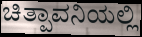
ಚಿತ್ಪಾವನಿಯಲ್ಲಿ